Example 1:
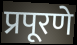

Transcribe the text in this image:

प्रपूरणे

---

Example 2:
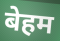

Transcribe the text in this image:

बेहम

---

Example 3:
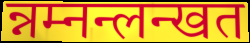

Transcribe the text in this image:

न्नम्नन्लन्खत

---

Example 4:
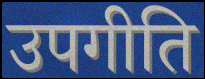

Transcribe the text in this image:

उपगीति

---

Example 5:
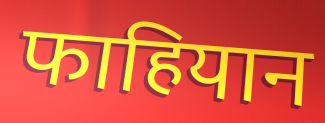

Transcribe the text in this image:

फाहियान